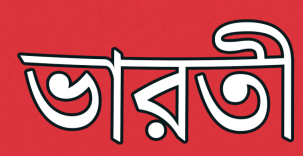
ভারতী